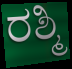
ರಶ್ಮಿ